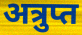
अत्रुप्त